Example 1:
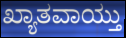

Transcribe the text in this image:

ಖ್ಯಾತವಾಯ್ತು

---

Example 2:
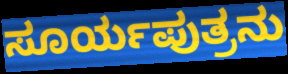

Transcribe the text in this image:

ಸೂರ್ಯಪುತ್ರನು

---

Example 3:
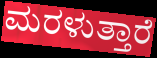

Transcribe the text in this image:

ಮರಳುತ್ತಾರೆ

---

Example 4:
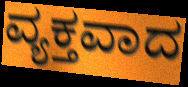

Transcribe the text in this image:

ವ್ಯಕ್ತವಾದ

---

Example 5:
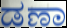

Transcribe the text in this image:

ಡಣಾ